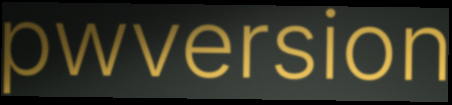
pwversion